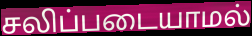
சலிப்படையாமல்